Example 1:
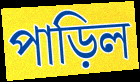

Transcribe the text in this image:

পাড়িল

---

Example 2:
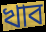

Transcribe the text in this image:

খাব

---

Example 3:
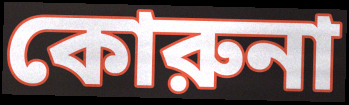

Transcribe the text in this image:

কোরুনা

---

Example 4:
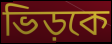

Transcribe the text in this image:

ভিড়কে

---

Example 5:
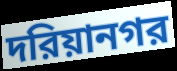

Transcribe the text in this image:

দরিয়ানগর